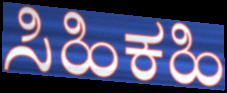
ಸಿಹಿಕಹಿ